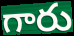
గారు